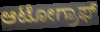
ಆಟೋಗ್ರಾಫ್